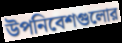
উপনিবেশগুলোর